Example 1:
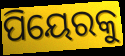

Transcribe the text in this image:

ପିୟେରକୁ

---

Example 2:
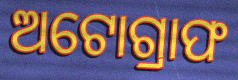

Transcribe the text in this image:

ଅଟୋଗ୍ରାଫ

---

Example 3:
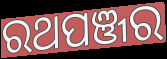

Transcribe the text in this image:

ରଥପଞ୍ଜର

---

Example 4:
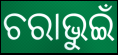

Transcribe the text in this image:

ଚରାଭୁଇଁ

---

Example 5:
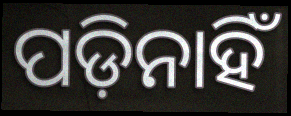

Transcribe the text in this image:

ପଡ଼ିନାହିଁ